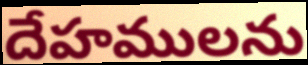
దేహములను